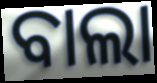
ବାଲା